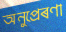
অনুপ্ৰেৰণা